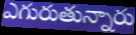
ఎగురుతున్నారు